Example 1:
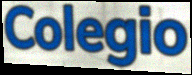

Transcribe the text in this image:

Colegio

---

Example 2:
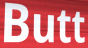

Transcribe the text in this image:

Butt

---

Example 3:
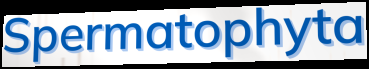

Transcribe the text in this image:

Spermatophyta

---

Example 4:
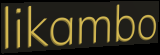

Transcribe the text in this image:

likambo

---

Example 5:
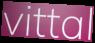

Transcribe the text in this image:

vittal